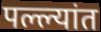
पल्ल्यांत